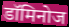
डॉमिनोज